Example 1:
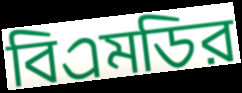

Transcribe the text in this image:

বিএমডির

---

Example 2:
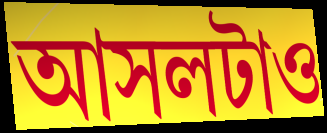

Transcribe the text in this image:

আসলটাও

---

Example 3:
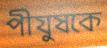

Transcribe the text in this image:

পীযুষকে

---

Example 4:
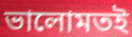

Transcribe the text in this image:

ভালোমতই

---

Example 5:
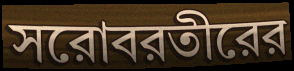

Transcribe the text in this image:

সরোবরতীরের